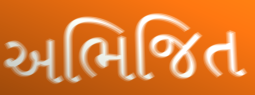
અભિજિત